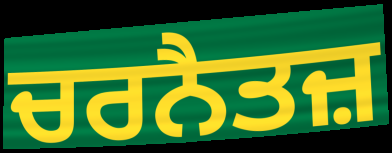
ਚਰਨੈਤਜ਼